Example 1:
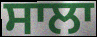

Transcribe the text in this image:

ਸਾਲਾ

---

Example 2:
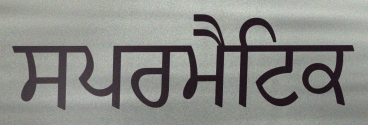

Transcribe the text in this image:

ਸਪਰਮੈਟਿਕ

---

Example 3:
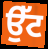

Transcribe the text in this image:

ਉੱਟ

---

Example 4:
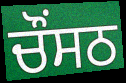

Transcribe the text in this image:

ਚੌਂਸਠ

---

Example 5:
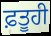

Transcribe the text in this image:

ਫ਼ਤੂਹੀ